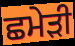
ਛਮੇੜੀ